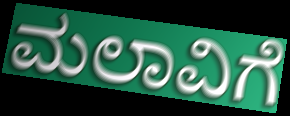
ಮಲಾವಿಗೆ